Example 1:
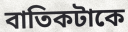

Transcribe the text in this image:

বাতিকটাকে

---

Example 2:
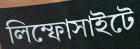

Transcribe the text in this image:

লিম্ফোসাইটে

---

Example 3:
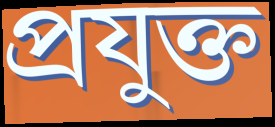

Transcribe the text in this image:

প্রযুক্ত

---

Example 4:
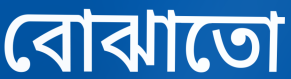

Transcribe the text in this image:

বোঝাতো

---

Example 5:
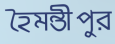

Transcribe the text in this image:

হৈমন্তীপুর